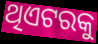
ଥିଏଟରକୁ